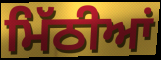
ਮਿੱਠੀਆਂ